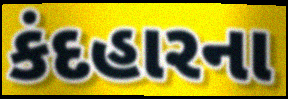
કંદહારના